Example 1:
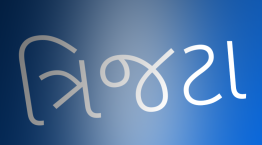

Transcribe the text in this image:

ત્રિજટા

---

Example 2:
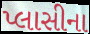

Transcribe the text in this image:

પ્લાસીના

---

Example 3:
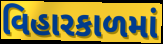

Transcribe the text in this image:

વિહારકાળમાં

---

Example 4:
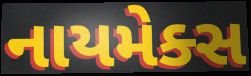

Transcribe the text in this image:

નાયમેક્સ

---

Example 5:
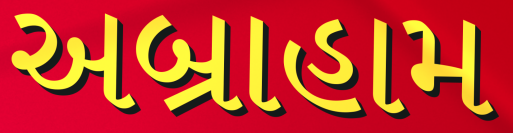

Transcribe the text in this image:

અબ્રાહામ